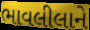
ભાવલીલાને